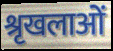
श्रृखलाओं